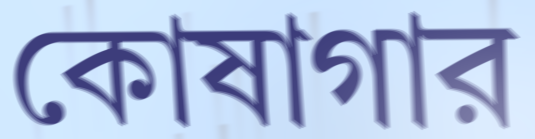
কোষাগার